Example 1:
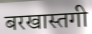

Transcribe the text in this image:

बरखास्तगी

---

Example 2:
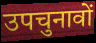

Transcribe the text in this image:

उपचुनावों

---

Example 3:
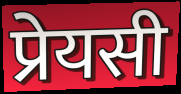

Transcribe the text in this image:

प्रेयसी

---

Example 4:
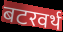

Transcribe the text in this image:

बटरवर्थ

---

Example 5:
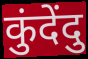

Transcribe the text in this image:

कुंदेंदु